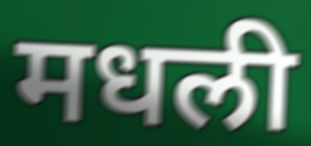
मधली